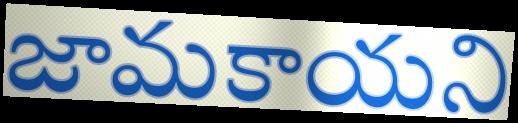
జామకాయని